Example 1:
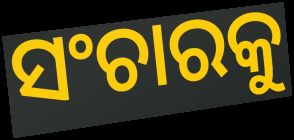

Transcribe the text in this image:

ସଂଚାରକୁ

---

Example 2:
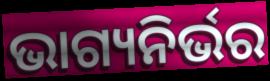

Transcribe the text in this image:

ଭାଗ୍ୟନିର୍ଭର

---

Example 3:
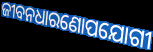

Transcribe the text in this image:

ଜୀବନଧାରଣୋପଯୋଗୀ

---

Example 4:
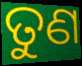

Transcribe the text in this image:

ତୁଣ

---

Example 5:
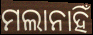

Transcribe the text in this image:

ମଲାନାହିଁ